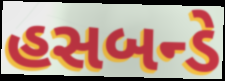
હસબન્ડે